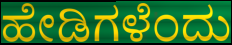
ಹೇಡಿಗಳೆಂದು